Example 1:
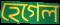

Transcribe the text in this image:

হেগেল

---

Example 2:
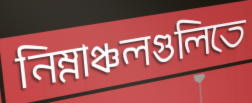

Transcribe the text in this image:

নিম্নাঞ্চলগুলিতে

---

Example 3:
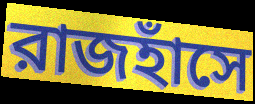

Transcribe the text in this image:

রাজহাঁসে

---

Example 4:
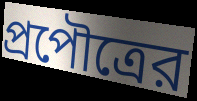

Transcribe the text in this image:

প্রপৌত্রের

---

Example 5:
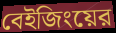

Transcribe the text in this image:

বেইজিংয়ের